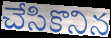
చేసికొనిన